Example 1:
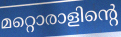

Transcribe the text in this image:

മറ്റൊരാളിന്റെ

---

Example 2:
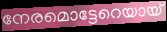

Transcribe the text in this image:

നേരമൊട്ടേറെയായ്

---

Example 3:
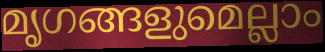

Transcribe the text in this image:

മൃഗങ്ങളുമെല്ലാം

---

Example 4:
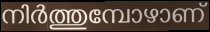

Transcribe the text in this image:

നിർത്തുമ്പോഴാണ്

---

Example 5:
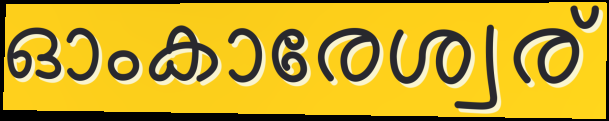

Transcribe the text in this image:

ഓംകാരേശ്വര്